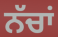
ਨੱਚਾਂ